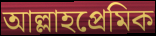
আল্লাহপ্রেমিক